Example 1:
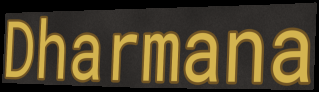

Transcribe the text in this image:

Dharmana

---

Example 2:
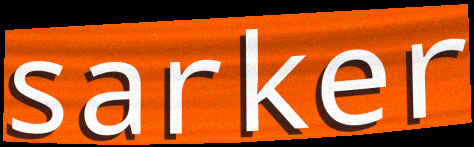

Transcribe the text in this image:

sarker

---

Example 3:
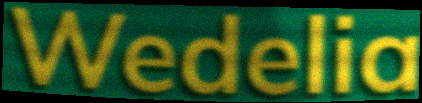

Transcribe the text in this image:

Wedelia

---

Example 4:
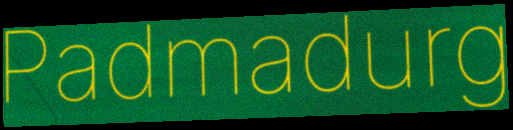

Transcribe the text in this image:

Padmadurg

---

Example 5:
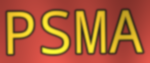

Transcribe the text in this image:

PSMA